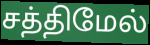
சத்திமேல்